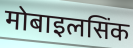
मोबाइलसिंक